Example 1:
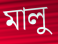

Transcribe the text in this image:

মালু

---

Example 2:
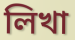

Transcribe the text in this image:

লিখা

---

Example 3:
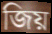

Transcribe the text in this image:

জিয়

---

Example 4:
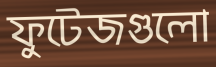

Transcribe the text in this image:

ফুটেজগুলো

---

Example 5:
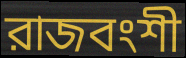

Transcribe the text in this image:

রাজবংশী